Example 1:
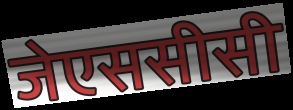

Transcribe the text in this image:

जेएससीसी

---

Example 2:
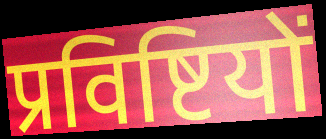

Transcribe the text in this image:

प्रविष्टियों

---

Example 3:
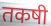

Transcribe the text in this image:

तकषी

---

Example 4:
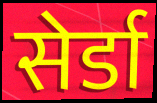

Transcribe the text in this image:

सेर्डा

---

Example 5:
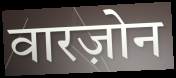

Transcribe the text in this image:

वारज़ोन